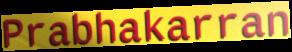
Prabhakarran